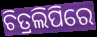
ଚିତ୍ରଲିପିରେ